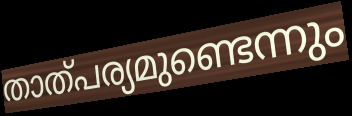
താത്പര്യമുണ്ടെന്നും